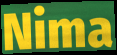
Nima